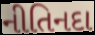
નીતિનદા